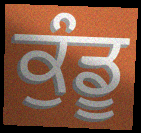
ਕੁੰਡੂ